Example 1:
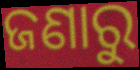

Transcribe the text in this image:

ଜଣାରୁ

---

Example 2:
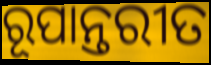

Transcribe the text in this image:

ରୂପାନ୍ତରୀତ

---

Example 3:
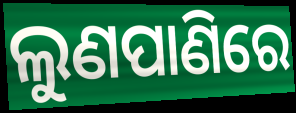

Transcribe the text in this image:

ଲୁଣପାଣିରେ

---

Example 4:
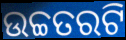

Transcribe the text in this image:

ଉଚ୍ଚତରଟି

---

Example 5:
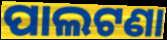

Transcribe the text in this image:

ପାଲଟଣା